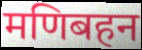
मणिबहन